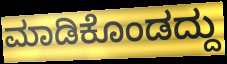
ಮಾಡಿಕೊಂಡದ್ದು